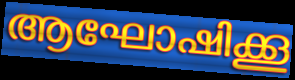
ആഘോഷിക്കൂ